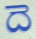
దె